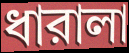
ধারালা